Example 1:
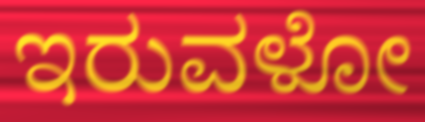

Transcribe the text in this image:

ಇರುವಳೋ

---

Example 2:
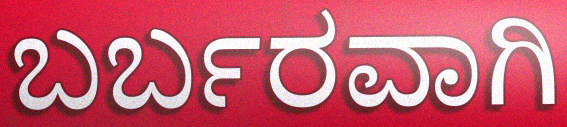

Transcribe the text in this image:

ಬರ್ಬರವಾಗಿ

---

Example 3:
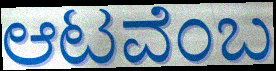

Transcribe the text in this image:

ಆಟವೆಂಬ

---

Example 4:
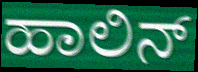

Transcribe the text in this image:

ಹಾಲಿನ್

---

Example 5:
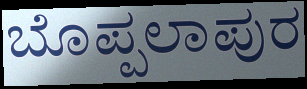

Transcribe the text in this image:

ಬೊಪ್ಪಲಾಪುರ